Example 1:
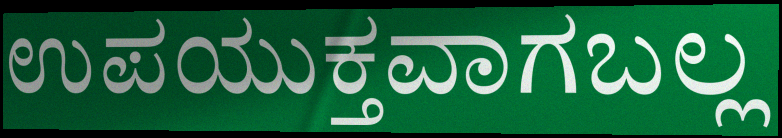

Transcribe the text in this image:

ಉಪಯುಕ್ತವಾಗಬಲ್ಲ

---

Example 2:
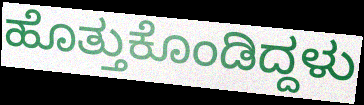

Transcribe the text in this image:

ಹೊತ್ತುಕೊಂಡಿದ್ದಳು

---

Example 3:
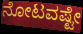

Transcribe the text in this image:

ನೋಟವಷ್ಟೇ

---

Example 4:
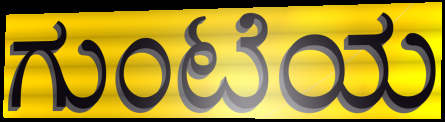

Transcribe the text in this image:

ಗುಂಟೆಯ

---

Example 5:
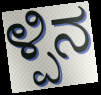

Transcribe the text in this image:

ಳ್ಪಿನ